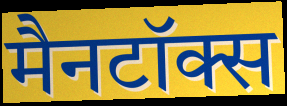
मैनटॉक्स